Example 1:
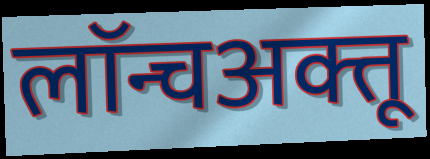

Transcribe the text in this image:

लॉन्चअक्तू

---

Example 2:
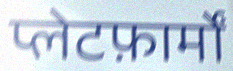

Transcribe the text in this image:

प्लेटफ़ार्मों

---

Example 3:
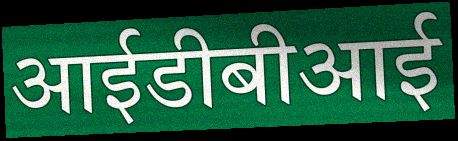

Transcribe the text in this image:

आईडीबीआई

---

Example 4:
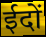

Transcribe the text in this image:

ईदों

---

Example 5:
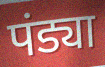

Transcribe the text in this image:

पंड्या